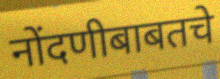
नोंदणीबाबतचे